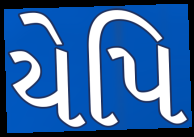
યેપિ